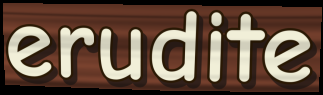
erudite